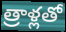
త్రాళ్లతో